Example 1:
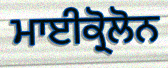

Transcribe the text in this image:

ਮਾਈਕ੍ਰੋਲੋਨ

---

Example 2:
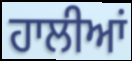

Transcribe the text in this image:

ਹਾਲੀਆਂ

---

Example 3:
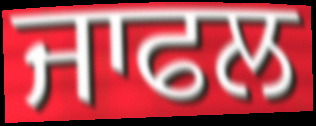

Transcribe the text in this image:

ਜਾਫਲ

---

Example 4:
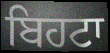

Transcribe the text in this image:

ਬਿਹਟਾ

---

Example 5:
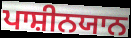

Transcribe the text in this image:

ਪਾਸ਼ੀਨਯਾਨ